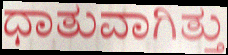
ಧಾತುವಾಗಿತ್ತು